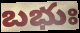
బభుః